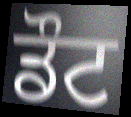
ਡੌਟ